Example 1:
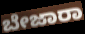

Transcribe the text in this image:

ಬೇಜಾರಾ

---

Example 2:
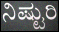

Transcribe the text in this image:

ನಿಷ್ಟುರಿ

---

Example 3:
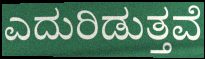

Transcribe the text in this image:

ಎದುರಿಡುತ್ತವೆ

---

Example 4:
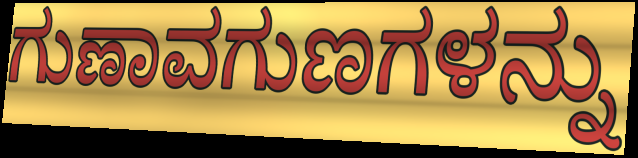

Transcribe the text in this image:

ಗುಣಾವಗುಣಗಳನ್ನು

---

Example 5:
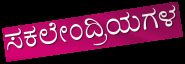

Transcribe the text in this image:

ಸಕಲೇಂದ್ರಿಯಗಳ